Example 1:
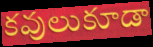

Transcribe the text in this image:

కవులుకూడా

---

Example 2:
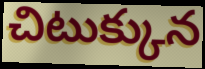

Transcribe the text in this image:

చిటుక్కున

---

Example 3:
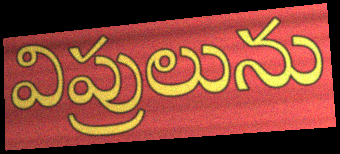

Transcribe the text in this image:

విప్రులును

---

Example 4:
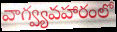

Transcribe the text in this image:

వాగ్వ్యవహారంలో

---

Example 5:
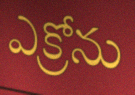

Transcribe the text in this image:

ఎక్రోను